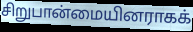
சிறுபான்மையினராகக்